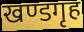
खण्डगृह